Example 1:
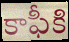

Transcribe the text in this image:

కాఫీకి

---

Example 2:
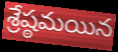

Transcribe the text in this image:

శ్రేష్ఠమయిన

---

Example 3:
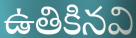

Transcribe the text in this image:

ఉతికినవి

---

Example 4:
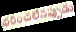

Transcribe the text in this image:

భరించలేనప్పుడు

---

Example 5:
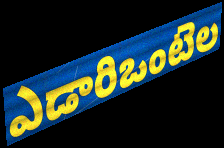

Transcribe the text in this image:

ఎడారిఒంటెల